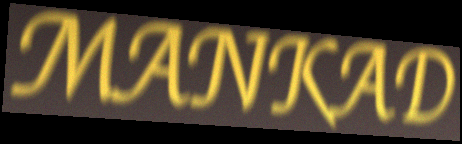
MANKAD